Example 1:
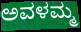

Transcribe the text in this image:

ಅವಳಮ್ಮ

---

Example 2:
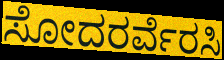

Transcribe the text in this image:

ಸೋದರರ್ವೆರಸಿ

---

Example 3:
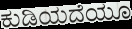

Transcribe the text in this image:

ಕುಡಿಯದೆಯೂ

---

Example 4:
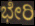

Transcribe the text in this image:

ಭೇರಿ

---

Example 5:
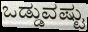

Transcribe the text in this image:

ಒಡ್ಡುವಷ್ಟು